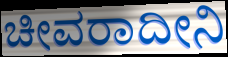
ಚೀವರಾದೀನಿ